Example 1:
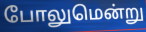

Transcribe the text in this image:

போலுமென்று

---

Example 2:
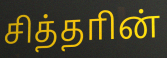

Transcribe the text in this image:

சித்தரின்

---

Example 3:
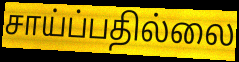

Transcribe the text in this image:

சாய்ப்பதில்லை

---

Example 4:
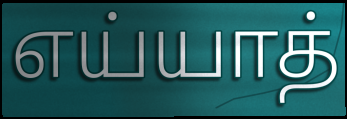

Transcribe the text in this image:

எய்யாத்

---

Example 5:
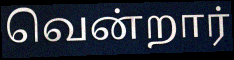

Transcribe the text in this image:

வென்றார்